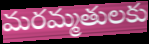
మరమ్మతులకు